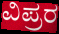
ವಿಪ್ರರ